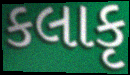
કલાકૃ